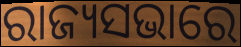
ରାଜ୍ୟସଭାରେ